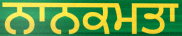
ਨਾਨਕਮਤਾ